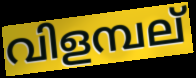
വിളമ്പല്